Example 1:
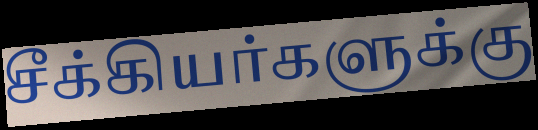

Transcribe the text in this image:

சீக்கியர்களுக்கு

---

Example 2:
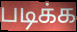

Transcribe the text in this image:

படிக்க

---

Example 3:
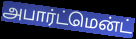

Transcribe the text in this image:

அபார்ட்மென்ட்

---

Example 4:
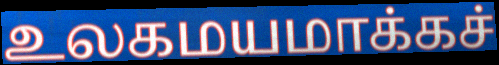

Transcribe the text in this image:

உலகமயமாக்கச்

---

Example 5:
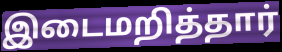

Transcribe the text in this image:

இடைமறித்தார்